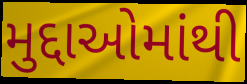
મુદ્દાઓમાંથી